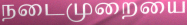
நடைமுறையை